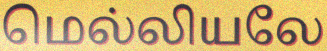
மெல்லியலே